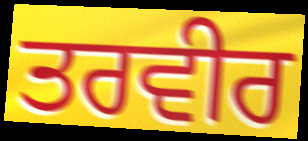
ਤਰਵੀਰ